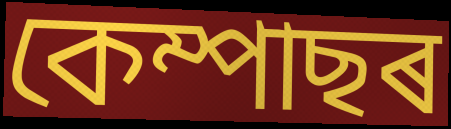
কেম্পাছৰ